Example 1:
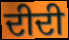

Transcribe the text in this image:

ਦੀਦੀ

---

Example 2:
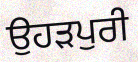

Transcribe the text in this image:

ਉਹੜਪੁਰੀ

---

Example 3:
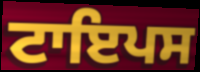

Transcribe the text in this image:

ਟਾਇਪਸ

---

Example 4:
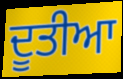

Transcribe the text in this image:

ਦੂਤੀਆ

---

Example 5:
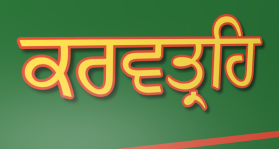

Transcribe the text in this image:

ਕਰਵਤ੍ਰਹਿ